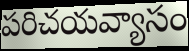
పరిచయవ్యాసం